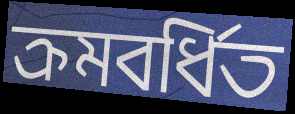
ক্ৰমবৰ্ধিত